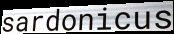
sardonicus